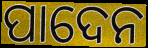
ପାଦେନ